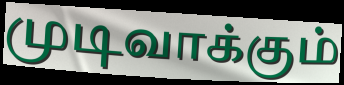
முடிவாக்கும்